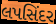
લપસિંદર